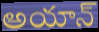
అయాన్